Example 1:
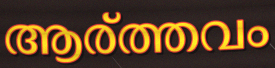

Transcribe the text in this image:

ആര്ത്തവം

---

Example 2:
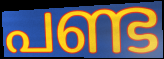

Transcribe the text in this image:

പണ്ട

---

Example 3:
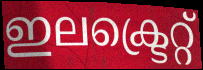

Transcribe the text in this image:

ഇലക്ട്രെറ്റ്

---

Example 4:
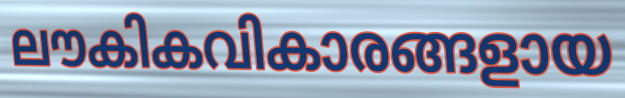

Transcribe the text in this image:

ലൗകികവികാരങ്ങളായ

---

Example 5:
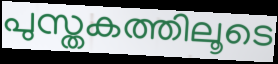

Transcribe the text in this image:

പുസ്തകത്തിലൂടെ